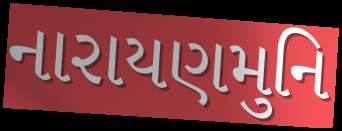
નારાયણમુનિ